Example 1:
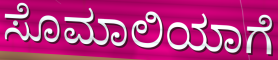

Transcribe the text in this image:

ಸೊಮಾಲಿಯಾಗೆ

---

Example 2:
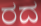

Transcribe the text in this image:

ರದ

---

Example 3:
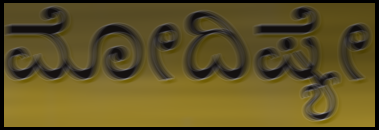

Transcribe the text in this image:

ಮೋದಿಷ್ಯೇ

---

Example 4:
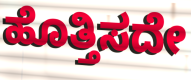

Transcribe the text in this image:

ಹೊತ್ತಿಸದೇ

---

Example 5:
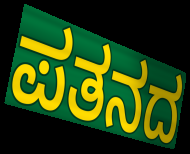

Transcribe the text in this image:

ಪತನದ